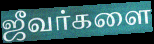
ஜீவர்களை